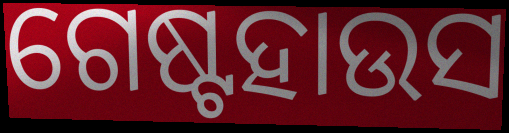
ଗେଷ୍ଟହାଉସ